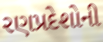
રણપ્રદેશોની